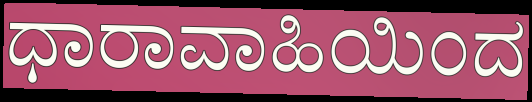
ಧಾರಾವಾಹಿಯಿಂದ